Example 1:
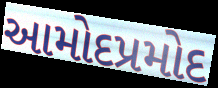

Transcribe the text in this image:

આમોદપ્રમોદ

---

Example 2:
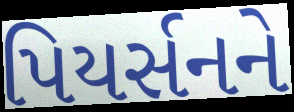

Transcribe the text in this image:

પિયર્સનને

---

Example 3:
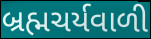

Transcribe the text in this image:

બ્રહ્મચર્યવાળી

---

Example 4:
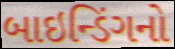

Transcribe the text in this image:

બાઇન્ડિંગનો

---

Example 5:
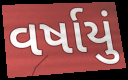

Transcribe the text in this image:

વર્ષાયું